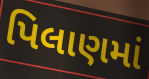
પિલાણમાં